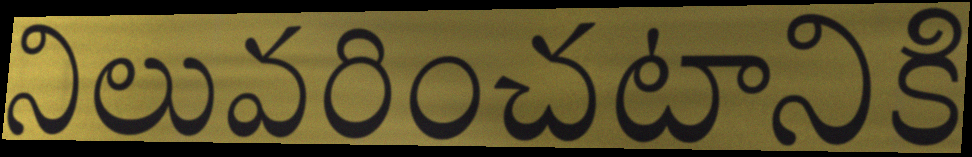
నిలువరించటానికి